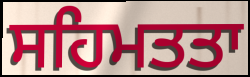
ਸਹਿਮਤਤਾ